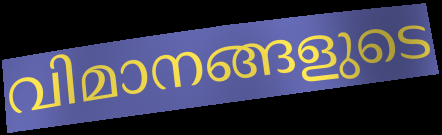
വിമാനങ്ങളുടെ